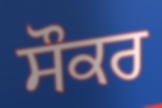
ਸੌਕਰ